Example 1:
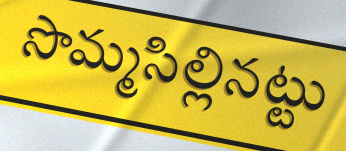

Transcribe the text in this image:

సొమ్మసిల్లినట్టు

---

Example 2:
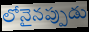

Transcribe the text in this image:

లోనైనప్పుడు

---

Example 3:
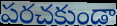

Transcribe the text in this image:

పరచకుండా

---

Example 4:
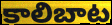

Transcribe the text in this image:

కాలిబాట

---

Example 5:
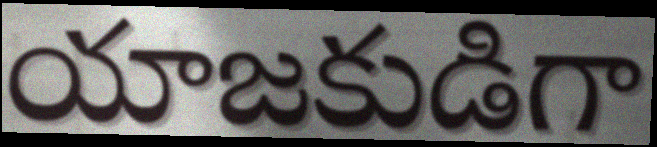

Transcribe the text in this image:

యాజకుడిగా